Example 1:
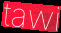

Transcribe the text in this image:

tawi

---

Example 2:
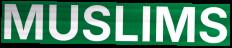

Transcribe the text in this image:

MUSLIMS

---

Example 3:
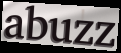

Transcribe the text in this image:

abuzz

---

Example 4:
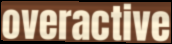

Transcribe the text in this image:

overactive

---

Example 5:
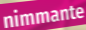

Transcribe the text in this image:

nimmante